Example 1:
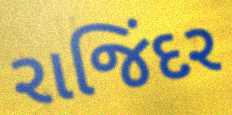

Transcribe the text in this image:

રાજિંદર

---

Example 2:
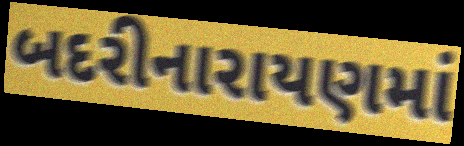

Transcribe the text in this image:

બદરીનારાયણમાં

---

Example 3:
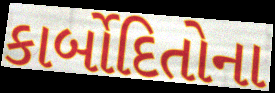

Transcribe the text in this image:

કાર્બોદિતોના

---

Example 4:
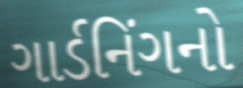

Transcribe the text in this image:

ગાર્ડનિંગનો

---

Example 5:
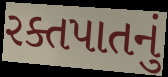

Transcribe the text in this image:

રક્તપાતનું